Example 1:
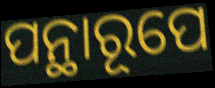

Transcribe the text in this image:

ପନ୍ଥାରୂପେ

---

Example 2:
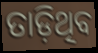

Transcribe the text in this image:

ତାଡ଼ିଥିବ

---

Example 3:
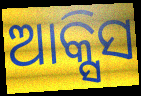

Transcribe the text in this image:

ଆକ୍ସିସ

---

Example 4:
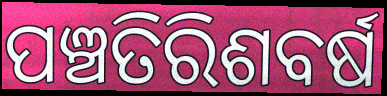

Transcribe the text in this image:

ପଞ୍ଚତିରିଶବର୍ଷ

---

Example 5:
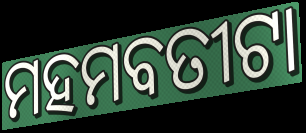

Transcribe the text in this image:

ମହମବତୀଟା